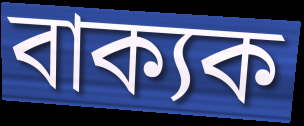
বাক্যক